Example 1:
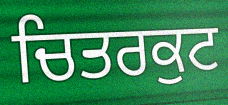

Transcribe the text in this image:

ਚਿਤਰਕੁਟ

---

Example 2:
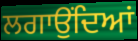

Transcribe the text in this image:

ਲਗਾਉਂਦਿਆਂ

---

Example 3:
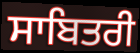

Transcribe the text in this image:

ਸਾਬਿਤਰੀ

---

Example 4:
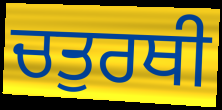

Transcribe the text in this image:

ਚਤੁਰਥੀ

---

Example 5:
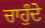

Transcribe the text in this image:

ਚਾਹੁੰਦੇ